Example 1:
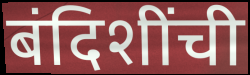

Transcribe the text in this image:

बंदिशींची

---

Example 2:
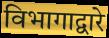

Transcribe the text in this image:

विभागाद्वारे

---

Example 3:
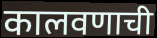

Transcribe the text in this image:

कालवणाची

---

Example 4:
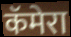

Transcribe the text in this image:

कॅमेरा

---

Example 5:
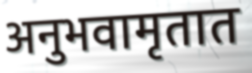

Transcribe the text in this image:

अनुभवामृतात